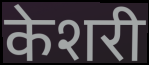
केशरी